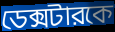
ডেক্সটারকে